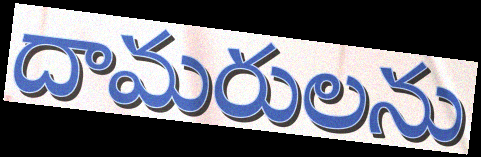
దామరులను